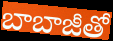
బాబాజీతో